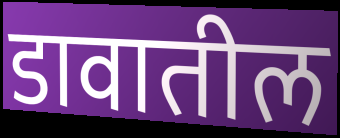
डावातील